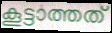
കൂട്ടാത്തത്